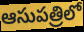
ఆసుపత్రిలో